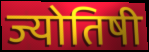
ज्योतिषी